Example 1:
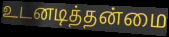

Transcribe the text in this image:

உடனடித்தன்மை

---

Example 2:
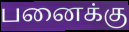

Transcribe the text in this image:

பனைக்கு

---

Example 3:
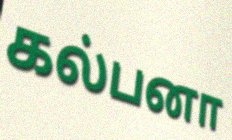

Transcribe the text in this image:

கல்பனா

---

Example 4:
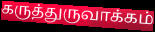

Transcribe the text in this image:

கருத்துருவாக்கம்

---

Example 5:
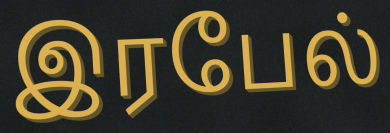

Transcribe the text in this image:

இரபேல்